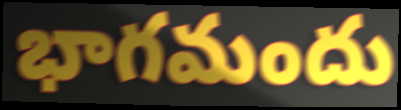
భాగమందు